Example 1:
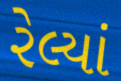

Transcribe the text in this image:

રેલ્યાં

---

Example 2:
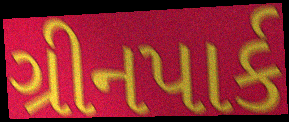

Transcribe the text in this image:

ગ્રીનપાર્ક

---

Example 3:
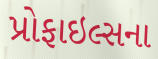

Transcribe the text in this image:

પ્રોફાઇલ્સના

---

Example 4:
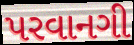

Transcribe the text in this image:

પરવાનગી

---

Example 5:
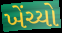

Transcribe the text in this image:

ખેંચ્યો